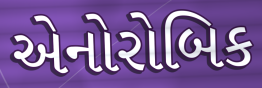
એનોરોબિક